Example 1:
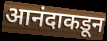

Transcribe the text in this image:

आनंदाकडून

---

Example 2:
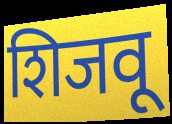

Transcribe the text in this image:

शिजवू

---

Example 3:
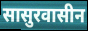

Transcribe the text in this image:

सासुरवासीन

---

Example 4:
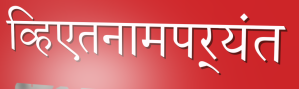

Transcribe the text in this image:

व्हिएतनामपर्यंत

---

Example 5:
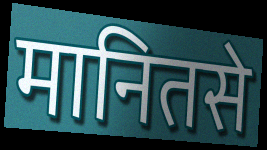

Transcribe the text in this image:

मानितसे